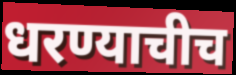
धरण्याचीच